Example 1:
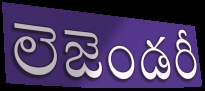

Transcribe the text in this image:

లెజెండరీ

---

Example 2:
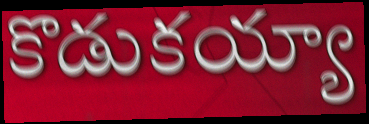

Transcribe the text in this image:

కొడుకయ్యా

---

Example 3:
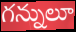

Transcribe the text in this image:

గన్నులూ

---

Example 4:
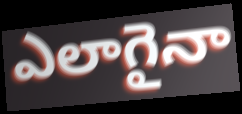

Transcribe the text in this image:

ఎలాగైనా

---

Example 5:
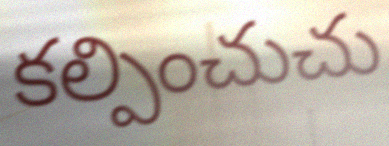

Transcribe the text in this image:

కల్పించుచు